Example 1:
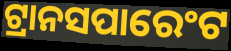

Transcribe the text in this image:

ଟ୍ରାନସପାରେଂଟ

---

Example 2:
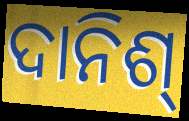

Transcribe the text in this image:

ଦାନିଶ୍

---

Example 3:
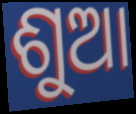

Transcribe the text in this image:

ଶୁଆ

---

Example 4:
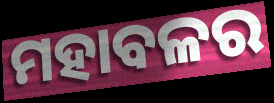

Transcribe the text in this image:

ମହାବଳର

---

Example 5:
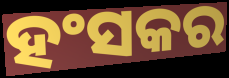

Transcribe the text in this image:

ହଂସକର